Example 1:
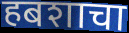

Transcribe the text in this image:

हबशाचा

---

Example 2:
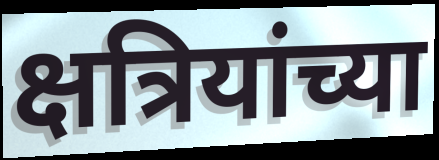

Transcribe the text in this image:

क्षत्रियांच्या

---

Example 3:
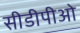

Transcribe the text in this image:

सीडीपीओ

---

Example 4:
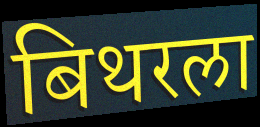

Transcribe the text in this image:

बिथरला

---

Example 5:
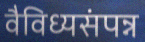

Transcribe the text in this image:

वैविध्यसंपन्न